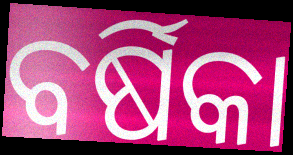
ବର୍ଷିକା